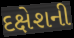
દક્ષેશની